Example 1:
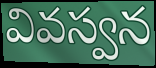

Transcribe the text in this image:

వివస్వన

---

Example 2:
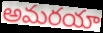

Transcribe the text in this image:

అమరయా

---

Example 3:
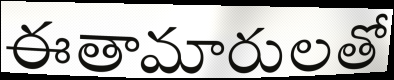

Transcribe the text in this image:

ఈతామారులతో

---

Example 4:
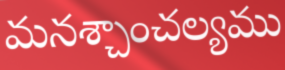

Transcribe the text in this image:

మనశ్చాంచల్యము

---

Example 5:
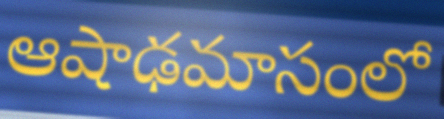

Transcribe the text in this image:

ఆషాఢమాసంలో